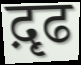
द़ृढ